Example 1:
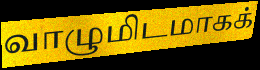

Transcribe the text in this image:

வாழுமிடமாகக்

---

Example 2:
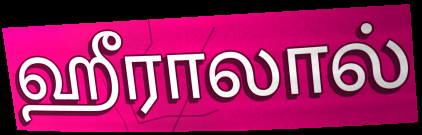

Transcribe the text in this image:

ஹீராலால்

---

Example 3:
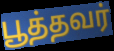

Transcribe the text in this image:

பூத்தவர்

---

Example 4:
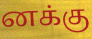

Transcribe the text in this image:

னக்கு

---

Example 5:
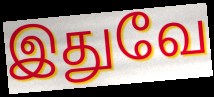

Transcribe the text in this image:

இதுவே